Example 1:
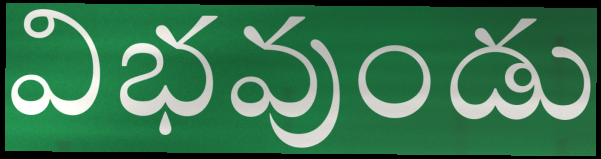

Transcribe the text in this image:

విభవుండు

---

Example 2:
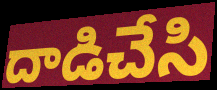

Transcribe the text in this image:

దాడిచేసి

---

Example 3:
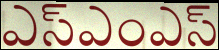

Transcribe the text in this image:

ఎస్ఎంఎస్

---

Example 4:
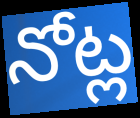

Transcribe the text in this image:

నోట్ల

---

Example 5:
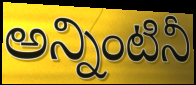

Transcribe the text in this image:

అన్నింటినీ